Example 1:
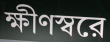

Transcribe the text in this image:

ক্ষীণস্বরে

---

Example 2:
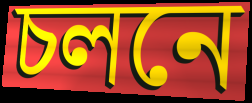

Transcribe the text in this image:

চলনে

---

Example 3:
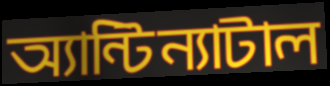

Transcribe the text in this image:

অ্যান্টিন্যাটাল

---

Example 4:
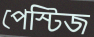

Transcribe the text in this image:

পেস্টিজ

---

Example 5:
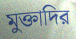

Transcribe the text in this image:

মুক্তাদির